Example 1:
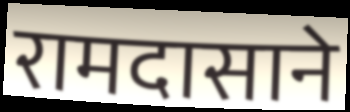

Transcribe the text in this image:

रामदासाने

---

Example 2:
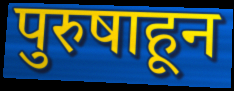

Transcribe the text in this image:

पुरुषाहून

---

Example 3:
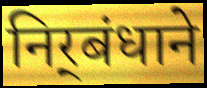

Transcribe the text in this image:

निर्बंधाने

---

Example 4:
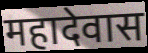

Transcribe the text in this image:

महादेवास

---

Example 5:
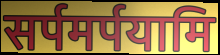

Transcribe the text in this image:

सर्पमर्पयामि